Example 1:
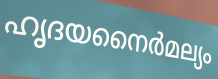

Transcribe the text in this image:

ഹൃദയനൈർമല്യം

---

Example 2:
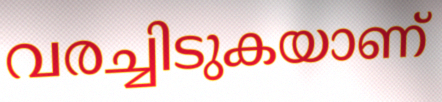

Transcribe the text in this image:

വരച്ചിടുകയാണ്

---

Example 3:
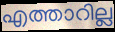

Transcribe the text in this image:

എത്താറില്ല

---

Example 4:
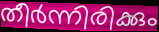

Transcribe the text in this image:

തീർന്നിരിക്കും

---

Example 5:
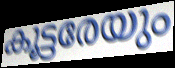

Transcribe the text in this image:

കൂട്ടരേയും